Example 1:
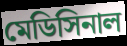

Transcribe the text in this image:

মেডিসিনাল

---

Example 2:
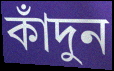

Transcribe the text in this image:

কাঁদুন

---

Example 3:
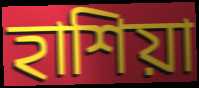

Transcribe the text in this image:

হাশিয়া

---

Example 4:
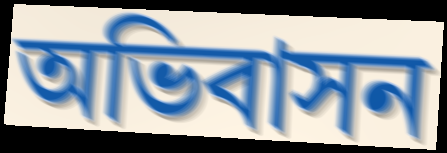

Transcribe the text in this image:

অভিবাসন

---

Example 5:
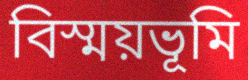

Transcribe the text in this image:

বিস্ময়ভূমি